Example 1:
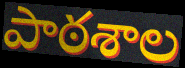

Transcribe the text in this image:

పాఠశాల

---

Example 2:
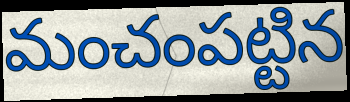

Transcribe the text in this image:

మంచంపట్టిన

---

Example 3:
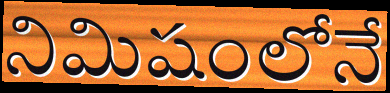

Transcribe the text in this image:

నిమిషంలోనే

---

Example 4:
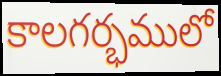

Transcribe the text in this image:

కాలగర్భములో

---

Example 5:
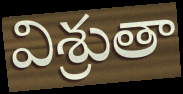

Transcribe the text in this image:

విశ్రుతా